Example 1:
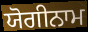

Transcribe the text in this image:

ਯੋਗੀਨਾਮ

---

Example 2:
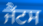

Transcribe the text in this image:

ਜੈਂਟਸ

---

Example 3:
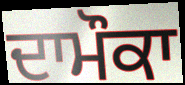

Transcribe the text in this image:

ਦਾਮੌਕਾ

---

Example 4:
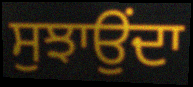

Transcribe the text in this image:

ਸੁਝਾਉਂਦਾ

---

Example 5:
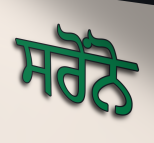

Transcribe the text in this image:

ਸਰੋਂਨੋ